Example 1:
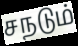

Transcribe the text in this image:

சநடும்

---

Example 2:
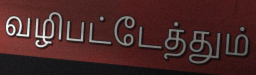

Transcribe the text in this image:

வழிபட்டேத்தும்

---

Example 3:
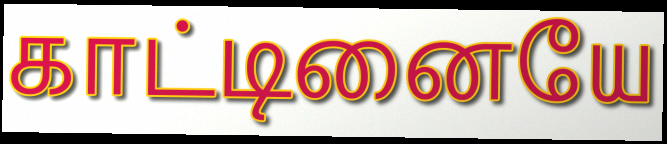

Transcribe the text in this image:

காட்டினையே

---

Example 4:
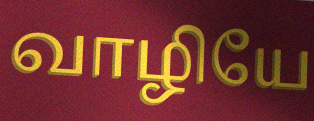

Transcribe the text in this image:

வாழியே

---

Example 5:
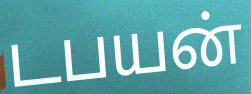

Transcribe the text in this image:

டபயன்